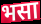
भसा